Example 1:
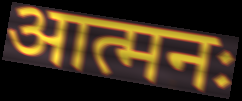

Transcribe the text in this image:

आत्मनः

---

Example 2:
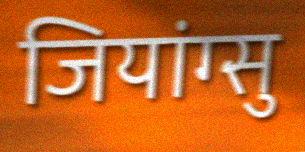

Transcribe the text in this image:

जियांग्सु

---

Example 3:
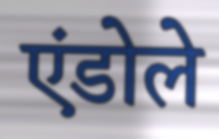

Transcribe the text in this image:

एंडोले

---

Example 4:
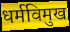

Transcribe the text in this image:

धर्मविमुख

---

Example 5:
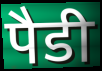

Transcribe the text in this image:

पैडी